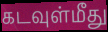
கடவுள்மீது